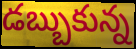
డబ్బుకున్న